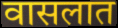
वासलात